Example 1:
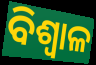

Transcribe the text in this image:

ବିଶ୍ୱାଳ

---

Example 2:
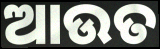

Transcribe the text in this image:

ଆଉତ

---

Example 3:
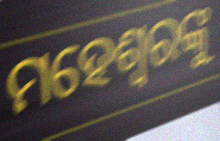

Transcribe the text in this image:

ମହେଶ୍ଵରଙ୍କୁ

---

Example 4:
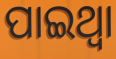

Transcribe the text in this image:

ପାଇଥ୍ବା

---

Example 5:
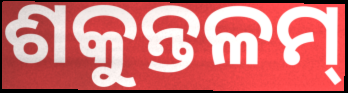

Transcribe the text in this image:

ଶକୁନ୍ତଳମ୍